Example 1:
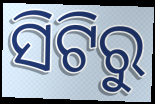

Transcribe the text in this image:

ସିଟିରୁ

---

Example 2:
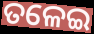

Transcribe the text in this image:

ତଳେଇ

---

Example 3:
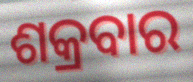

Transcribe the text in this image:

ଶକ୍ରବାର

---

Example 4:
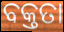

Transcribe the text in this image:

ବକ୍ତତା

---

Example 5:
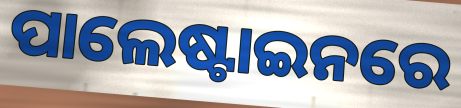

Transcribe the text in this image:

ପାଲେଷ୍ଟାଇନରେ